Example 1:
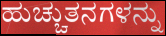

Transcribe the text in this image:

ಹುಚ್ಚುತನಗಳನ್ನು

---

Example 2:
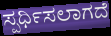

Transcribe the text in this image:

ಸ್ಪರ್ಧಿಸಲಾಗದೆ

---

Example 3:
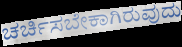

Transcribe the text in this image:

ಚರ್ಚಿಸಬೇಕಾಗಿರುವುದು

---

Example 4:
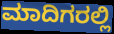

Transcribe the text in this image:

ಮಾದಿಗರಲ್ಲಿ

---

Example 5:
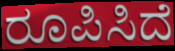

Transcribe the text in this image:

ರೂಪಿಸಿದೆ